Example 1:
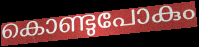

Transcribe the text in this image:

കൊണ്ടുപോകും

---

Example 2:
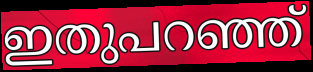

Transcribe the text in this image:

ഇതുപറഞ്ഞ്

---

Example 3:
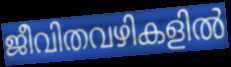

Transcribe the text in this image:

ജീവിതവഴികളിൽ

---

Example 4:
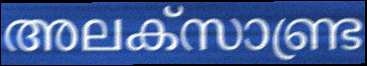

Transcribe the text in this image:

അലക്സാണ്ട്ര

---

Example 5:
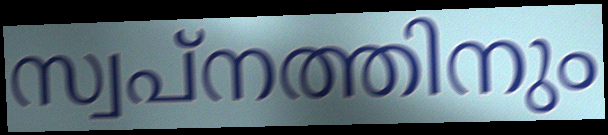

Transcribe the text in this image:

സ്വപ്നത്തിനും